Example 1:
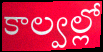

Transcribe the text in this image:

కాల్వల్లో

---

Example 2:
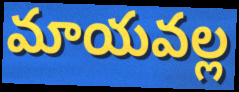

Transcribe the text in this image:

మాయవల్ల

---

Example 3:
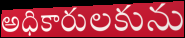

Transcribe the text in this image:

అధికారులకును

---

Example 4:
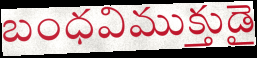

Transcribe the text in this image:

బంధవిముక్తుడై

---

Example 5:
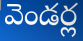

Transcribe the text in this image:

వెండర్ల